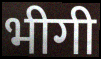
भीगी